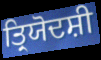
ਤ੍ਰਿਯੋਦਸ਼ੀ